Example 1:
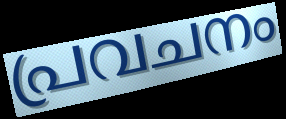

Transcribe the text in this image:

പ്രവചനം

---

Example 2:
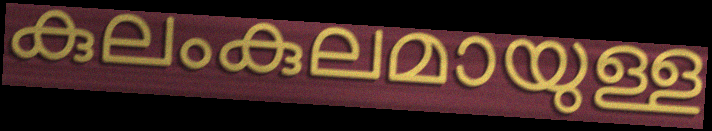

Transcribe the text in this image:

കുലംകുലമായുള്ള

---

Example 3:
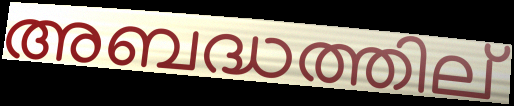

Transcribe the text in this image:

അബദ്ധത്തില്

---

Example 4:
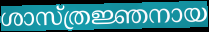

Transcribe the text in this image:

ശാസ്ത്രജ്ഞനായ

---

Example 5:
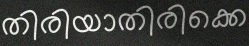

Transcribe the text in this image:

തിരിയാതിരിക്കെ